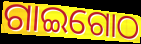
ଗାଇଗୋଠ